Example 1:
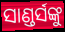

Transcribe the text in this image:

ସାଣ୍ଡର୍ସଙ୍କୁ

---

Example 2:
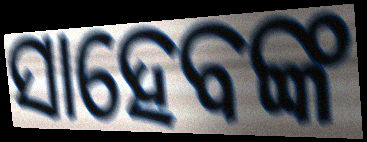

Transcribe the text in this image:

ସାହେବଙ୍କ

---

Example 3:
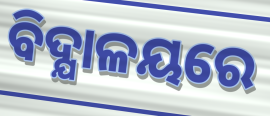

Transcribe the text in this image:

ବିଦ୍ଯାଳୟରେ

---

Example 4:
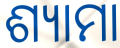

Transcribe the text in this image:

ଶ୍ୟାମା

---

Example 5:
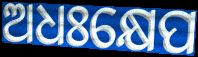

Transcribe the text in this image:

ଅଧଃକ୍ଷେପ